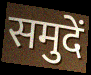
समुदें